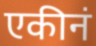
एकीनं